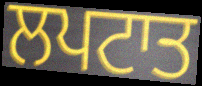
ਲਪਟਾਤ